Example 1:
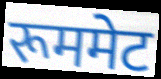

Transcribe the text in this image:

रूममेट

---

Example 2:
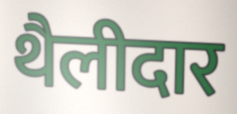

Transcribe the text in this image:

थैलीदार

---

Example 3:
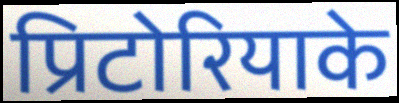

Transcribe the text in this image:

प्रिटोरियाके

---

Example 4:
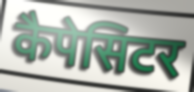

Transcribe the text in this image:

कैपेसिटर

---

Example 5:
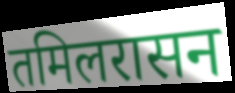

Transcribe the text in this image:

तमिलरासन